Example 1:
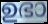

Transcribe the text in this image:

ഉഭാ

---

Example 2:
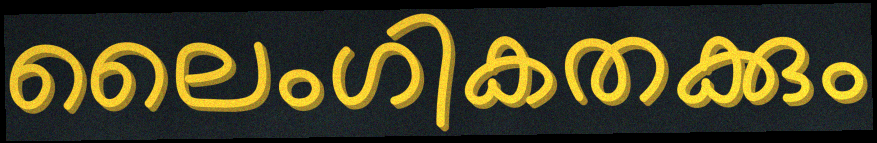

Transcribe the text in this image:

ലൈംഗികതക്കും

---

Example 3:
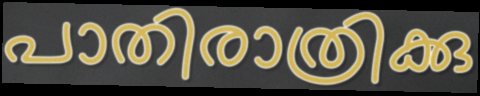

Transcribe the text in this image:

പാതിരാത്രിക്കു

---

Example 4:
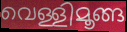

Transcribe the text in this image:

വെള്ളിമൂങ്ങ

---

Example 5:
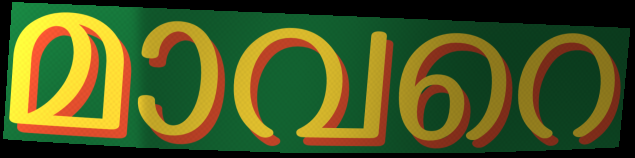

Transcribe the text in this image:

മാവറെ